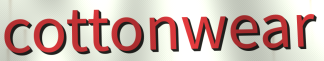
cottonwear